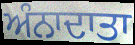
ਅੰਨਾਦਾਤਾ